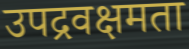
उपद्रवक्षमता